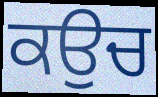
ਕਉਚ